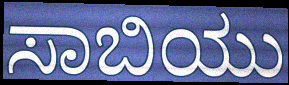
ಸಾಬಿಯು